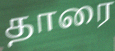
தாரை